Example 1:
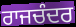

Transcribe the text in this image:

ਰਾਜਚੰਦਰ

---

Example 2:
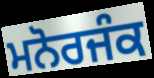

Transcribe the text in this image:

ਮਨੋਰਜੰਕ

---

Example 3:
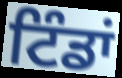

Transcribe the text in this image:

ਟਿੰਡਾਂ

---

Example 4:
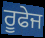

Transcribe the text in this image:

ਰੂਫੇਜ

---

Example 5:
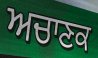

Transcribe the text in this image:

ਅਚਾਣਕ